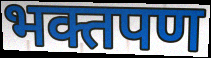
भक्तपण